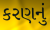
કરણનું